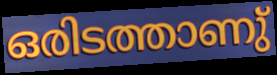
ഒരിടത്താണു്